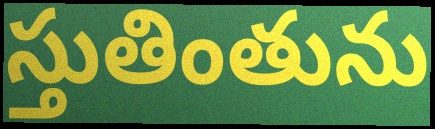
స్తుతింతును